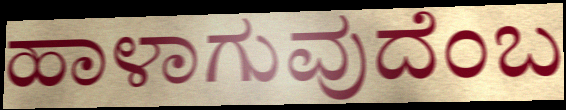
ಹಾಳಾಗುವುದೆಂಬ